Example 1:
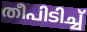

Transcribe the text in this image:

തീപിടിച്ച്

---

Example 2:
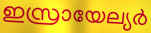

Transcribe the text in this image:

ഇസ്രായേല്യർ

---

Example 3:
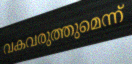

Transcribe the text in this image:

വകവരുത്തുമെന്ന്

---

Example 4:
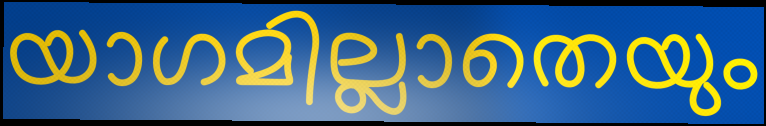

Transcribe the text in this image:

യാഗമില്ലാതെയും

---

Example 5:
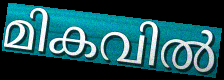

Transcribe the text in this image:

മികവിൽ